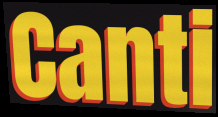
Canti